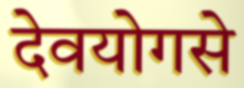
देवयोगसे